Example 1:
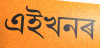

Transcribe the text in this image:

এইখনৰ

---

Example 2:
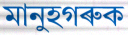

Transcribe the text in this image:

মানুহগৰুক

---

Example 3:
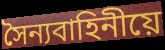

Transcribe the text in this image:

সৈন্যবাহিনীয়ে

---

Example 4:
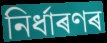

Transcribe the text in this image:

নিৰ্ধাৰণৰ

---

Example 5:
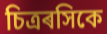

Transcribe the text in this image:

চিত্ৰৰসিকে